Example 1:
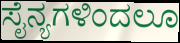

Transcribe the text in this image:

ಸೈನ್ಯಗಳಿಂದಲೂ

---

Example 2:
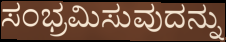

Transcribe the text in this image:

ಸಂಭ್ರಮಿಸುವುದನ್ನು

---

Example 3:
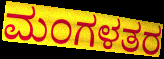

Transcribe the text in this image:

ಮಂಗಳತರ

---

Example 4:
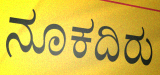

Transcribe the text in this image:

ನೂಕದಿರು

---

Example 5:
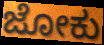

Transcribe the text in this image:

ಜೋಕು